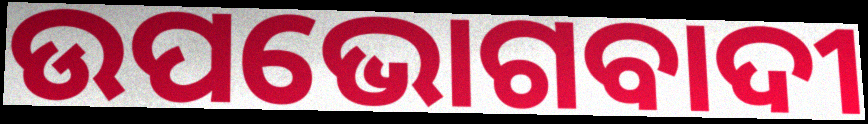
ଉପଭୋଗବାଦୀ